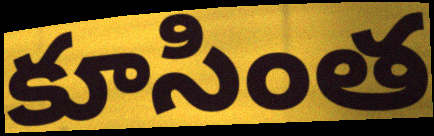
కూసింత